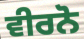
ਵੀਰਨੋ